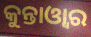
କୁନ୍ତାଓ୍ୱାର